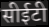
सीईटी